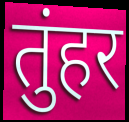
तुंहर